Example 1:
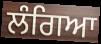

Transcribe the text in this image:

ਲੰਗਿਆ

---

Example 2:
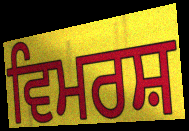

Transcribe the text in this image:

ਵਿਮਰਸ਼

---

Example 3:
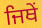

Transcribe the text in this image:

ਜਿਥੇਂ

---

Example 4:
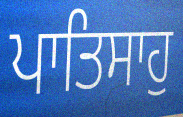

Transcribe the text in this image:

ਪਾਤਿਸਾਹੁ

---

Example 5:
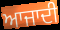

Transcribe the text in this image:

ਆਜਾਦੀ